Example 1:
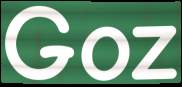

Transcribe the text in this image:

Goz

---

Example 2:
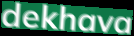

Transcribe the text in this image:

dekhava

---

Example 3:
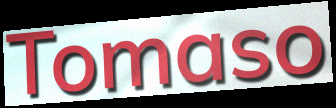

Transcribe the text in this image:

Tomaso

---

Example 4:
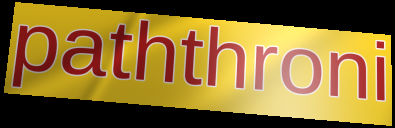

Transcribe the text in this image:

paththroni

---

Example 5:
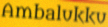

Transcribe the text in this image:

Ambalukku